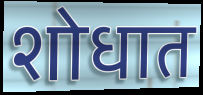
शोधात